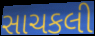
સાચકલી